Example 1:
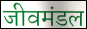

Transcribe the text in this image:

जीवमंडल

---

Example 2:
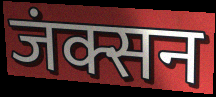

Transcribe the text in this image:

जंक्सन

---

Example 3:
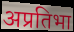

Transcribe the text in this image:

अप्रतिभा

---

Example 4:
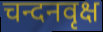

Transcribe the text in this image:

चन्दनवृक्ष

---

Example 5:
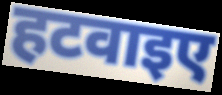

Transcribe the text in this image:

हटवाइए